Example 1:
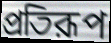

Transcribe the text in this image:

প্রতিরূপ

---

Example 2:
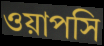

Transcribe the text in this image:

ওয়াপসি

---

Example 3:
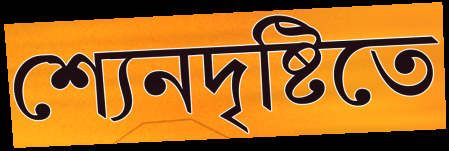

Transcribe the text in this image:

শ্যেনদৃষ্টিতে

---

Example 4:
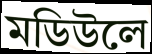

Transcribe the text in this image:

মডিউলে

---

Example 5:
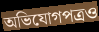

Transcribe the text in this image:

অভিযোগপত্রও